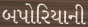
બપોરિયાની